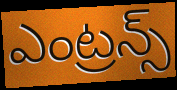
ఎంట్రన్స్